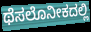
ಥೆಸಲೊನೀಕದಲ್ಲಿ